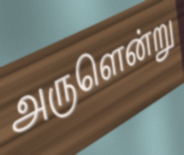
அருளென்று